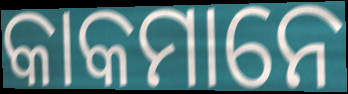
କାକମାନେ